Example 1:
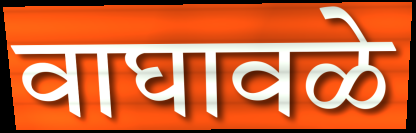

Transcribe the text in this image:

वाघावळे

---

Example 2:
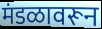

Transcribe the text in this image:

मंडळावरून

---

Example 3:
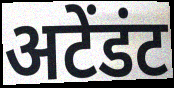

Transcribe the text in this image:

अटेंडंट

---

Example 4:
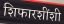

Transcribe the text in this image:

शिफारशींशी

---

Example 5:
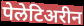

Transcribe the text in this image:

पेलेटिअरीन